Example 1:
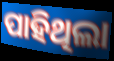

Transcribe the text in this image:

ପାହିଥିଲା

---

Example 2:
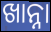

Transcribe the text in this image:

ଖାନ୍ନା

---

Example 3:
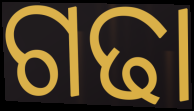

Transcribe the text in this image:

ଗଢା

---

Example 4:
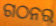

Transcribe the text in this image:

ଗଠନର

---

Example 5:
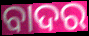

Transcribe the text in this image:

ବାଦର